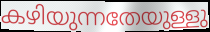
കഴിയുന്നതേയുള്ളു